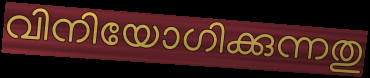
വിനിയോഗിക്കുന്നതു